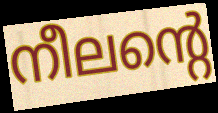
നീലന്റെ